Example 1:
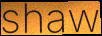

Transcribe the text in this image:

shaw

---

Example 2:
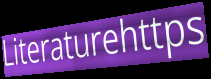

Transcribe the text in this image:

Literaturehttps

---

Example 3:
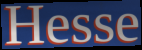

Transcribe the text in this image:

Hesse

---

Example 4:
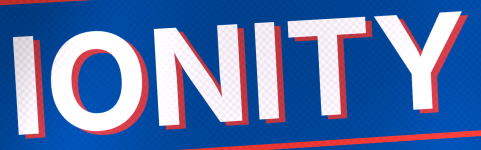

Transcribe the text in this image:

IONITY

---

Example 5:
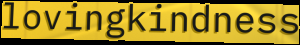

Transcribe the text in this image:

lovingkindness